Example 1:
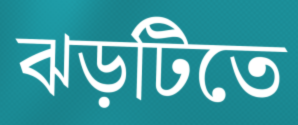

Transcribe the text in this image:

ঝড়টিতে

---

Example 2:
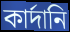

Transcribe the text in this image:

কার্দানি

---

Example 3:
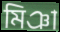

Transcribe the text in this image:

মিঞা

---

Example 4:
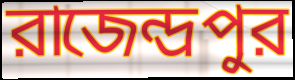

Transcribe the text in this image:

রাজেন্দ্রপুর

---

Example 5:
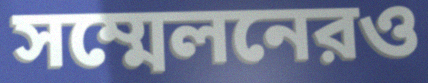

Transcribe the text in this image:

সম্মেলনেরও